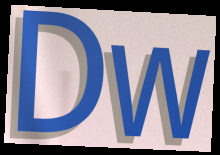
Dw